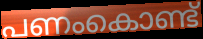
പണംകൊണ്ട്